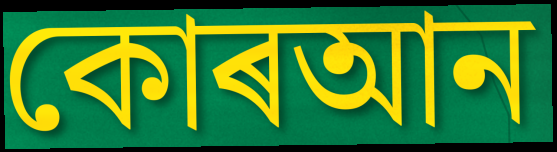
কোৰআন